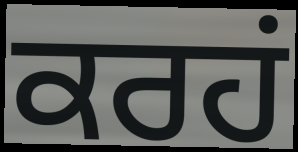
ਕਰਹਂ